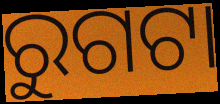
ରୁଗଟା